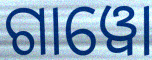
ଗାୱୋ